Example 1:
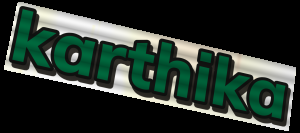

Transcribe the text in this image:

karthika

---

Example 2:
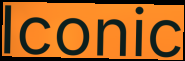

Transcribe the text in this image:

Iconic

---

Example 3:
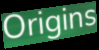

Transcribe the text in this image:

Origins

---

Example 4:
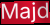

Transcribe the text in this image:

Majd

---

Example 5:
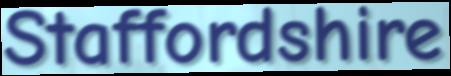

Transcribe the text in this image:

Staffordshire